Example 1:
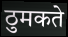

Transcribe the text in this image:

ठुमकते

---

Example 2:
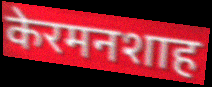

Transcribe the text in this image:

केरमनशाह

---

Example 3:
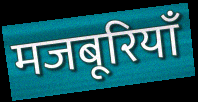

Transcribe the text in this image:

मजबूरियाँ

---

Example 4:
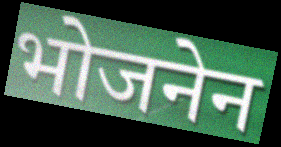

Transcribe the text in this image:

भोजनेन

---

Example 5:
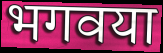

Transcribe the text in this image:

भगवया